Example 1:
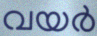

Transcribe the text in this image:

വയർ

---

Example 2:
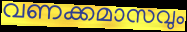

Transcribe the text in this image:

വണക്കമാസവും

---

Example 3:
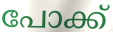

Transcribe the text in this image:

പോക്ക്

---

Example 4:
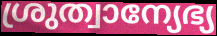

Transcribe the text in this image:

ശ്രുത്വാന്യേഭ്യ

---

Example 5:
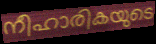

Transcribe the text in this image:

നീഹാരികയുടെ